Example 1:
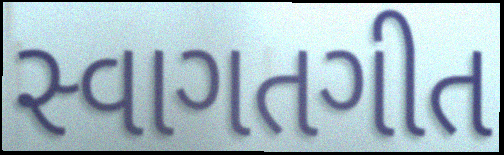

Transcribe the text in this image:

સ્વાગતગીત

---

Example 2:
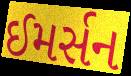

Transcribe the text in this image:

ઈમર્સન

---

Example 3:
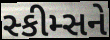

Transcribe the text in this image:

સ્કીમ્સને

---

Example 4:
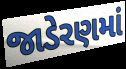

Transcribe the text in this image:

જાડેરણમાં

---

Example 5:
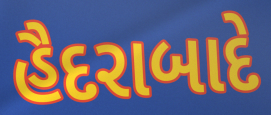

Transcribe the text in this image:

હૈદરાબાદે